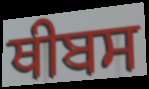
ਥੀਬਸ